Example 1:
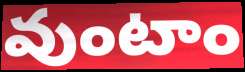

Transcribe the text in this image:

వుంటాం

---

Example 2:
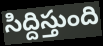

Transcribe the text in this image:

సిద్దిస్తుంది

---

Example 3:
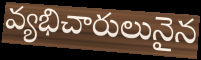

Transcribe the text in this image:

వ్యభిచారులునైన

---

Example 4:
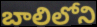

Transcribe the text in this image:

బాలిలోని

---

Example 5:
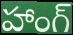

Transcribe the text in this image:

హాంగ్